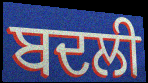
ਬਦਲੀ